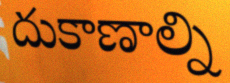
దుకాణాల్ని